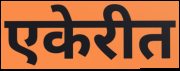
एकेरीत